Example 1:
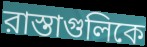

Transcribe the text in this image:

রাস্তাগুলিকে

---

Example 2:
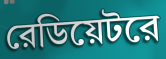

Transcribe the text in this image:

রেডিয়েটরে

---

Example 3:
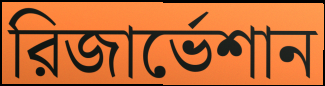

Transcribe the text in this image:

রিজার্ভেশান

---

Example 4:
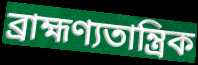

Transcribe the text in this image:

ব্রাহ্মণ্যতান্ত্রিক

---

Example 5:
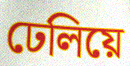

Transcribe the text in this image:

ঢেলিয়ে